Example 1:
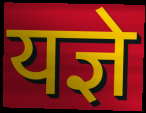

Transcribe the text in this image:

यज्ञे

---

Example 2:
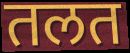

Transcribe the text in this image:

तलत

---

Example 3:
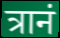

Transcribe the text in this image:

त्रानं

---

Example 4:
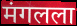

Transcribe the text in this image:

मंगलला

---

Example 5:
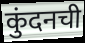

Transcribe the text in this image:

कुंदनची